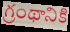
గ్రంథానికి